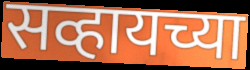
सव्हायच्या